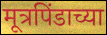
मूत्रपिंडाच्या